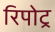
रिपोट्र